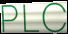
PLC